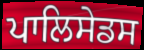
ਪਾਲਿਸੇਡਸ